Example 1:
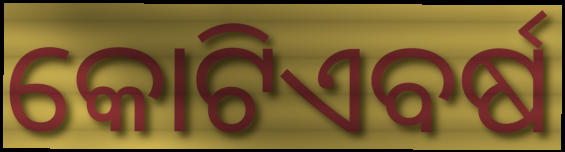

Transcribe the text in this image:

କୋଟିଏବର୍ଷ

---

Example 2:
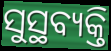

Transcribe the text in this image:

ସୁସ୍ଥବ୍ୟକ୍ତି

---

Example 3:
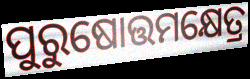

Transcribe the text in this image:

ପୁରୁଷୋତ୍ତମକ୍ଷେତ୍ର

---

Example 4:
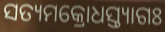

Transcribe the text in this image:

ସତ୍ୟମକ୍ରୋଧସ୍ତ୍ୟାଗଃ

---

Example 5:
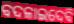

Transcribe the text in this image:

ବଦଳାଇଦେବି